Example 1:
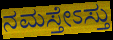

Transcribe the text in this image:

ನಮಸ್ತೇಽಸ್ತು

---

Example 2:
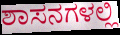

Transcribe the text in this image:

ಶಾಸನಗಳಲ್ಲಿ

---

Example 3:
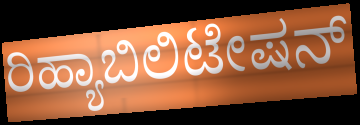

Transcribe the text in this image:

ರಿಹ್ಯಾಬಿಲಿಟೇಷನ್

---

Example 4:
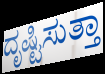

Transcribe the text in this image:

ದೃಷ್ಟಿಸುತ್ತಾ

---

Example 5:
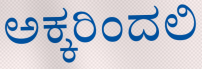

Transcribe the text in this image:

ಅಕ್ಕರಿಂದಲಿ